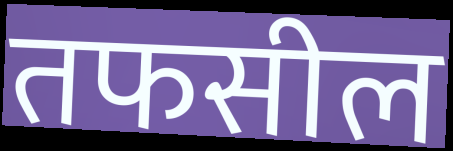
तफसील